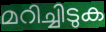
മറിച്ചിടുക